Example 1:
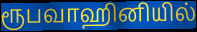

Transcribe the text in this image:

ரூபவாஹினியில்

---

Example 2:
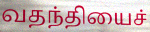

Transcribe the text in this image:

வதந்தியைச்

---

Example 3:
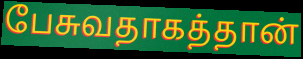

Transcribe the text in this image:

பேசுவதாகத்தான்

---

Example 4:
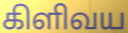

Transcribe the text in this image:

கிளிவய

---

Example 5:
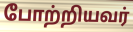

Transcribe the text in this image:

போற்றியவர்